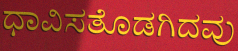
ಧಾವಿಸತೊಡಗಿದವು